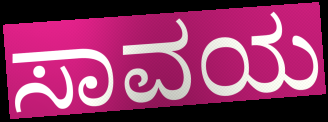
ಸಾವಯ